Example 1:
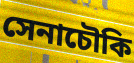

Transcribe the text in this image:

সেনাচৌকি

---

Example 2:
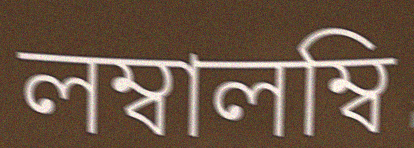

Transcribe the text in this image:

লম্বালম্বি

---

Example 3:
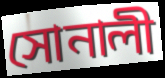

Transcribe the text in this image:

সোনালী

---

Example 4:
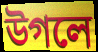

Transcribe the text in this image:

উগলে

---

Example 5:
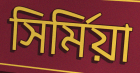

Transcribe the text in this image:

সির্মিয়া